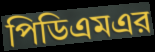
পিডিএমএর